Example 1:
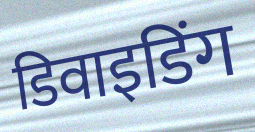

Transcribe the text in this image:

डिवाइडिंग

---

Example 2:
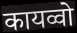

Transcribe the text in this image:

कायव्वो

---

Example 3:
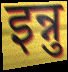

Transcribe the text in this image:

इन्नु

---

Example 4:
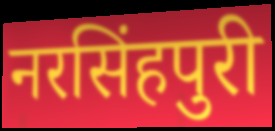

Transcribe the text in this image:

नरसिंहपुरी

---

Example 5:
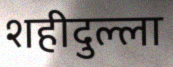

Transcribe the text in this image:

शहीदुल्ला